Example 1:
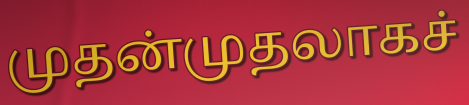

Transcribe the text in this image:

முதன்முதலாகச்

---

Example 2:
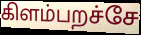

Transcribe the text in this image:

கிளம்பறச்சே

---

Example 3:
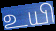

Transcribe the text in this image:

உயி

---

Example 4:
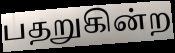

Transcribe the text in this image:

பதறுகின்ற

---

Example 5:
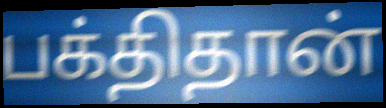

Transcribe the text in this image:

பக்திதான்